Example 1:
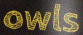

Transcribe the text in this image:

owls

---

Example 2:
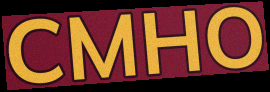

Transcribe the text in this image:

CMHO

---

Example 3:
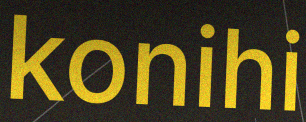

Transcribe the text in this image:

konihi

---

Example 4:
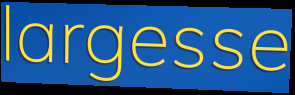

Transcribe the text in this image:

largesse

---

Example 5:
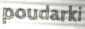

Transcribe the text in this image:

poudarki